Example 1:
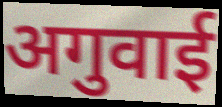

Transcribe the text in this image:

अगुवाई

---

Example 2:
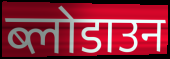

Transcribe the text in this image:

ब्लोडाउन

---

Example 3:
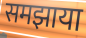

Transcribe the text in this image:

समझाया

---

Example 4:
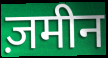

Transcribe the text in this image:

ज़मीन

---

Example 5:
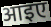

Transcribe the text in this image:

आइए